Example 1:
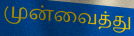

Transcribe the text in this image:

முன்வைத்து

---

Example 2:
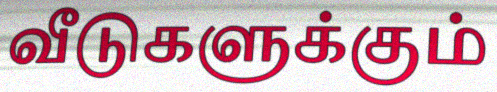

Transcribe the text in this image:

வீடுகளுக்கும்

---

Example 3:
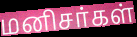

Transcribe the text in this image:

மனிசர்கள்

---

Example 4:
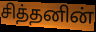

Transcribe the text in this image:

சித்தனின்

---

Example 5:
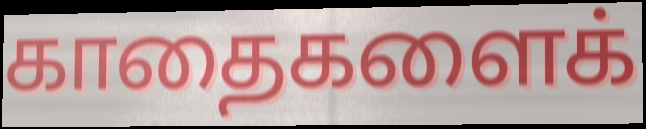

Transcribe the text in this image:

காதைகளைக்